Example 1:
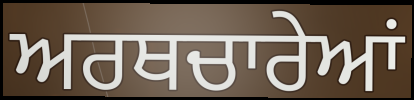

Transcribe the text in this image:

ਅਰਥਚਾਰੇਆਂ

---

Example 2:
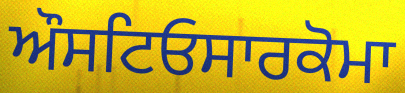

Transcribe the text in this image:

ਔਸਟਿਓਸਾਰਕੋਮਾ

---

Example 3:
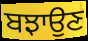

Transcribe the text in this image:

ਬਝਾਉਣ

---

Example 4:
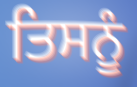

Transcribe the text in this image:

ਤਿਸਨੂੰ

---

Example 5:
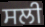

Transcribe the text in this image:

ਸਲੀ